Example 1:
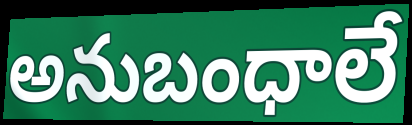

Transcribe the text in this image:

అనుబంధాలే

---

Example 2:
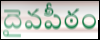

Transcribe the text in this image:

దైవపీఠం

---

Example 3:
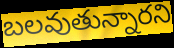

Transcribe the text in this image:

బలవుతున్నారని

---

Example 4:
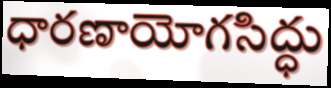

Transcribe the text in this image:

ధారణాయోగసిద్ధు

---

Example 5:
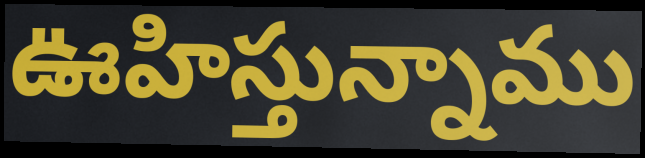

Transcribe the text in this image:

ఊహిస్తున్నాము